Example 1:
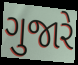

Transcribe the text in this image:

ગુજારે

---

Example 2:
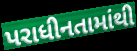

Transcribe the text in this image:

પરાધીનતામાંથી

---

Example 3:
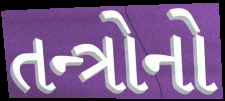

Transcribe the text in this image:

તન્ત્રોનો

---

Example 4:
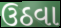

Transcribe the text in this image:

ઉઠવા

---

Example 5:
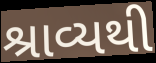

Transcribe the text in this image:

શ્રાવ્યથી